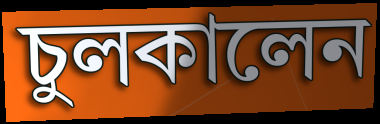
চুলকালেন